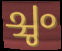
ച്ചും